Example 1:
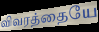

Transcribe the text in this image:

விவரத்தையே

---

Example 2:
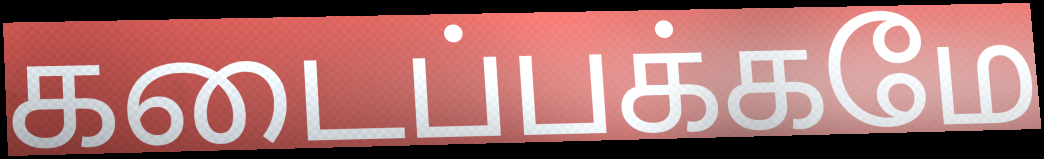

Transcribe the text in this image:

கடைப்பக்கமே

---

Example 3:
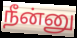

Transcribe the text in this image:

நீன்னு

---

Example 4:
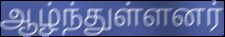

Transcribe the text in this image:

ஆழ்ந்துள்ளனர்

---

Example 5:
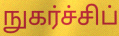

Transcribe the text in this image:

நுகர்ச்சிப்